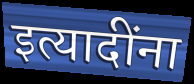
इत्यादींना